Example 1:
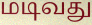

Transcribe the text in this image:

மடிவது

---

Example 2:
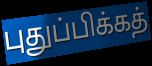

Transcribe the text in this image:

புதுப்பிக்கத்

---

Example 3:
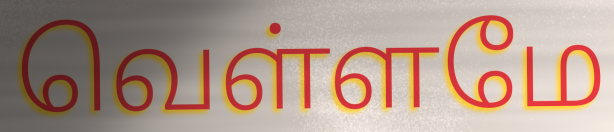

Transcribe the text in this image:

வெள்ளமே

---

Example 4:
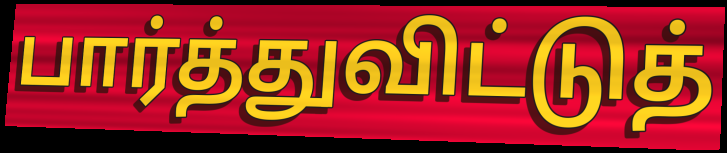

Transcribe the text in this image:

பார்த்துவிட்டுத்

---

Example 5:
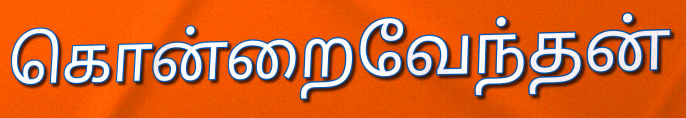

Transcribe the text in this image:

கொன்றைவேந்தன்